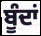
ਬੂੰਦਾਂ